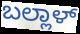
ಬಲ್ಲಾಳ್